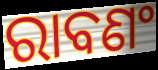
ରାବଣଂ